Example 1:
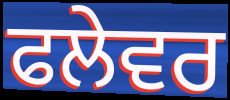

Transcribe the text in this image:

ਫਲੇਵਰ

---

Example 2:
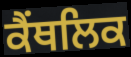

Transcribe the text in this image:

ਕੈਂਥਲਿਕ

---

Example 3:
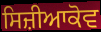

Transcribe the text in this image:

ਸਿਜ਼ੀਆਕੋਵ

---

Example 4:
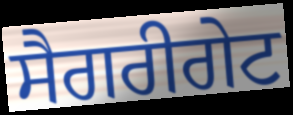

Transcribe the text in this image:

ਸੈਗਰੀਗੇਟ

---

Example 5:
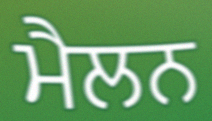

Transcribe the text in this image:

ਮੈਲਨ